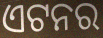
ଏଟନର